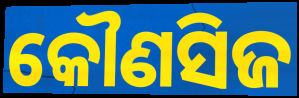
କୌଣସିଜ